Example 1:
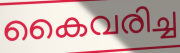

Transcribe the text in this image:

കൈവരിച്ച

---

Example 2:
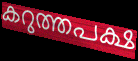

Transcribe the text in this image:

കറുത്തപക്ഷ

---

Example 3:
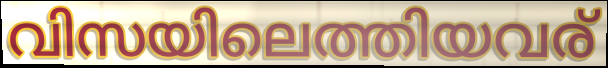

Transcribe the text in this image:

വിസയിലെത്തിയവര്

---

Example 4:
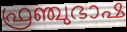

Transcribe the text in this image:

ഫ്രഞ്ചുഭാഷ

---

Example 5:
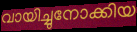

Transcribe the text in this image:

വായിച്ചുനോക്കിയ